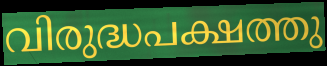
വിരുദ്ധപക്ഷത്തു